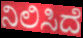
ನಿಲಿಸಿದೆ